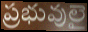
ప్రభువులై